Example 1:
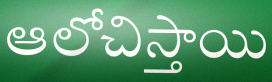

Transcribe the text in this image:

ఆలోచిస్తాయి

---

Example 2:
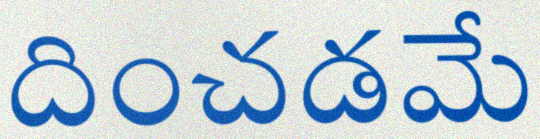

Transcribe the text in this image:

దించడమే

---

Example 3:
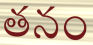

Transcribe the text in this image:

తనం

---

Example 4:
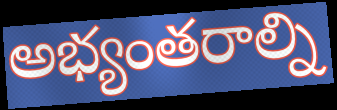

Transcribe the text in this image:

అభ్యంతరాల్ని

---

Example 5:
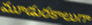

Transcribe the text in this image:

మూడురకాలుగా